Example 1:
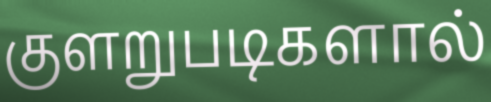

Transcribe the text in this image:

குளறுபடிகளால்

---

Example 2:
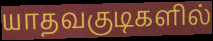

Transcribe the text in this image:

யாதவகுடிகளில்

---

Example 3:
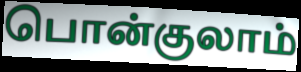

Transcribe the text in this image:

பொன்குலாம்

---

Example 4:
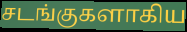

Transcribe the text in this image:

சடங்குகளாகிய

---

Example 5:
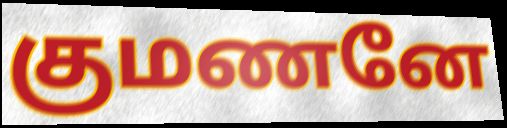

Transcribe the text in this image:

குமணனே